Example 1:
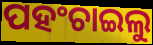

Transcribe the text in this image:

ପହଂଚାଇଲୁ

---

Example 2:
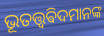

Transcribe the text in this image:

ଭୂତତ୍ତ୍ୱଵିଦମାନଙ୍କ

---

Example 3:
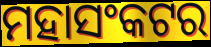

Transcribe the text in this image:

ମହାସଂକଟର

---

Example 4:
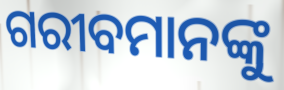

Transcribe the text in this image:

ଗରୀବମାନଙ୍କୁ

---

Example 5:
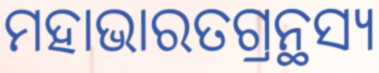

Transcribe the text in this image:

ମହାଭାରତଗ୍ରନ୍ଥସ୍ୟ